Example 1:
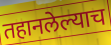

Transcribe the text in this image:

तहानलेल्याच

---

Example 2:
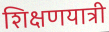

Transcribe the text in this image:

शिक्षणयात्री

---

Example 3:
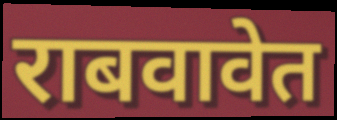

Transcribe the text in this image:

राबवावेत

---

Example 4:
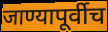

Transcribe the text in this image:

जाण्यापूर्वीच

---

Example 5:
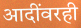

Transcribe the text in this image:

आदींवरही